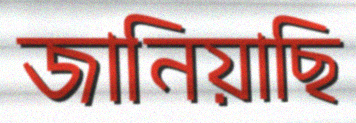
জানিয়াছি